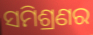
ସମିଶ୍ରଣର